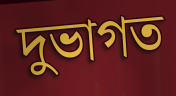
দুভাগত